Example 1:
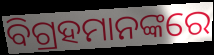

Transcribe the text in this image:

ବିଗ୍ରହମାନଙ୍କରେ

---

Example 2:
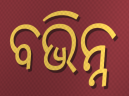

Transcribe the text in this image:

ବଭିନ୍ନ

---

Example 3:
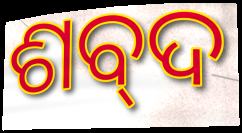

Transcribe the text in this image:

ଶବ୍‌ଦ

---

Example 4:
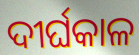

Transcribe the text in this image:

ଦୀର୍ଘକାଳ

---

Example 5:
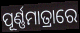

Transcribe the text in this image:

ପୂର୍ଣ୍ଣମାତ୍ରାରେ